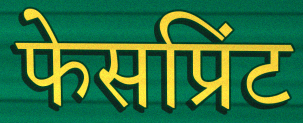
फेसप्रिंट